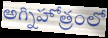
అగ్నిహోత్రంలో